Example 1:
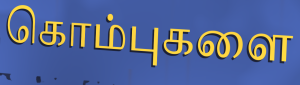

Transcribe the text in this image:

கொம்புகளை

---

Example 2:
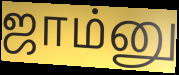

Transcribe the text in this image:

ஜாம்னு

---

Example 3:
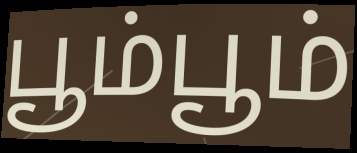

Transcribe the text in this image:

பூம்பூம்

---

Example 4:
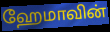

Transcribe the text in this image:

ஹேமாவின்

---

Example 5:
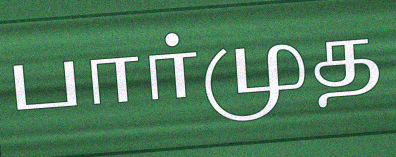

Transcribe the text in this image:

பார்முத